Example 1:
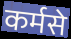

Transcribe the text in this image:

कर्मसे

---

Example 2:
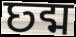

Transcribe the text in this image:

छ्द्म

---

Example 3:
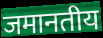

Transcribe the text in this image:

जमानतीय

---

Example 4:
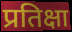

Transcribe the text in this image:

प्रतिक्षा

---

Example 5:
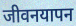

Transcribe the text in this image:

जीवनयापन